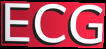
ECG